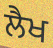
ਲੈਖ